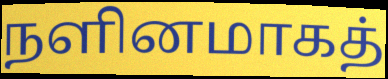
நளினமாகத்